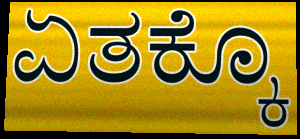
ಏತಕ್ಕೊ